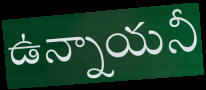
ఉన్నాయనీ